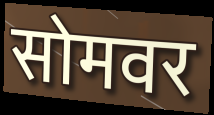
सोमवर